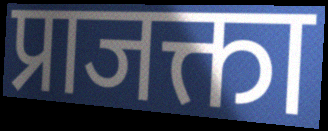
प्राजक्ता